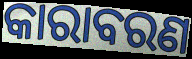
କାରାବରଣ